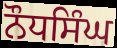
ਨੌਧਸਿੰਘ